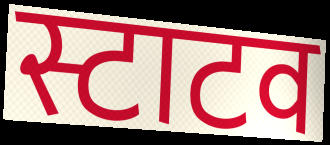
स्टाटव